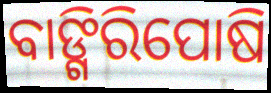
ବାଙ୍ଗିରିପୋଷି